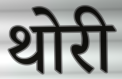
थोरी